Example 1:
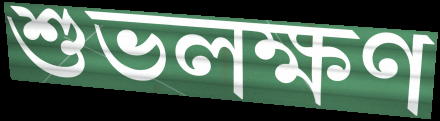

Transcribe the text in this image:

শুভলক্ষণ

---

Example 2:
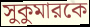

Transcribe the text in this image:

সুকুমারকে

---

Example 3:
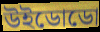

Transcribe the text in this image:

উইডোডো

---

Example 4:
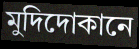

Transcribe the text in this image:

মুদিদোকানে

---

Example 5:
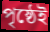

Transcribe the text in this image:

পৃষ্ঠেই